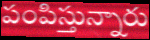
పంపిస్తున్నారు